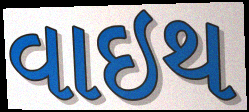
વાઇથ